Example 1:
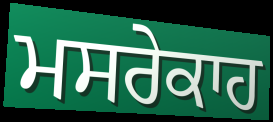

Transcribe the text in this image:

ਮਸਰੇਕਾਹ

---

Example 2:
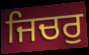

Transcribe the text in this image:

ਜਿਚਰੁ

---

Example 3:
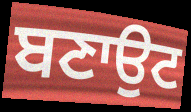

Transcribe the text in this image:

ਬਣਾਉਟ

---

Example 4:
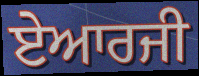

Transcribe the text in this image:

ਏਆਰਜੀ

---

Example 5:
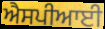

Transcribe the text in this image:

ਐਸਪੀਆਈ